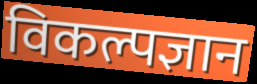
विकल्पज्ञान